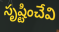
సృష్టించేవి